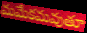
మమేకమవుతూ